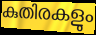
കുതിരകളും